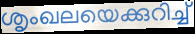
ശൃംഖലയെക്കുറിച്ച്